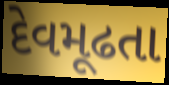
દેવમૂઢતા